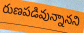
రుణపడివున్నానని